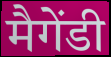
मैगेंडी